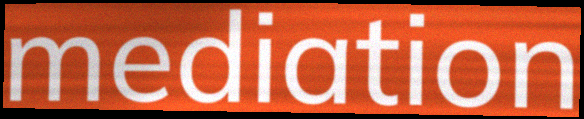
mediation